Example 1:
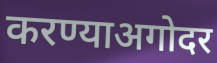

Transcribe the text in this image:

करण्याअगोदर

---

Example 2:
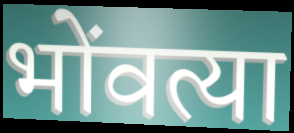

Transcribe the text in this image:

भोंवत्या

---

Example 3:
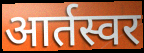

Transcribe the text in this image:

आर्तस्वर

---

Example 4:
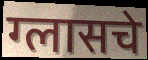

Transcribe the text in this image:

ग्लासचे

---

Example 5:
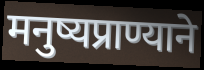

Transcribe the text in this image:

मनुष्यप्राण्याने